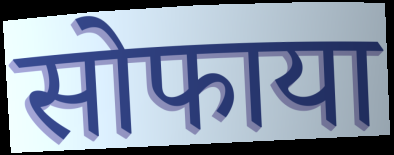
सोफाया